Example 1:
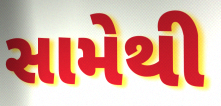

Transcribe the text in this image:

સામેથી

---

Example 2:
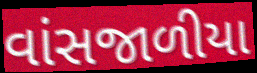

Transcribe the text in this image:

વાંસજાળીયા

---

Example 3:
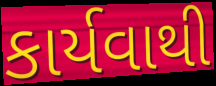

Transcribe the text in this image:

કાર્યવાથી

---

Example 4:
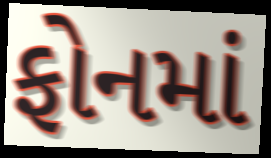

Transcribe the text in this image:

ફોનમાં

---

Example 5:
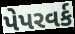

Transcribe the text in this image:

પેપરવર્ક